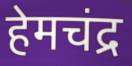
हेमचंद्र